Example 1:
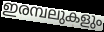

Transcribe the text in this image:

ഇരമ്പലുകളും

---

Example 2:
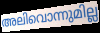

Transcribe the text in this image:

അലിവൊന്നുമില്ല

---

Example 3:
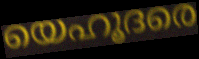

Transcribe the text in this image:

യെഹൂദരെ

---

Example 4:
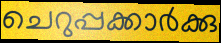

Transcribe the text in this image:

ചെറുപ്പക്കാർക്കു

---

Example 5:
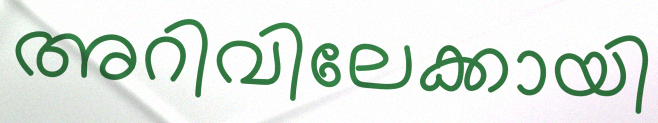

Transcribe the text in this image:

അറിവിലേക്കായി